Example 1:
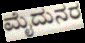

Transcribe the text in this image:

ಮೈದುನರ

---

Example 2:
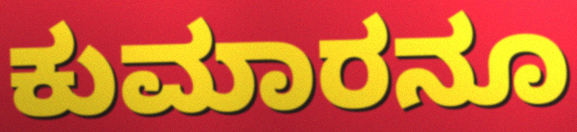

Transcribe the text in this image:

ಕುಮಾರನೂ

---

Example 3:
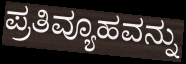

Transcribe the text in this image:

ಪ್ರತಿವ್ಯೂಹವನ್ನು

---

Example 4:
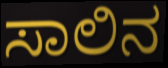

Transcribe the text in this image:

ಸಾಲಿನ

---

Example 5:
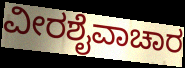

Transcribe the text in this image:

ವೀರಶೈವಾಚಾರ